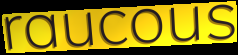
raucous